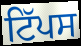
ਟਿੱਪਸ